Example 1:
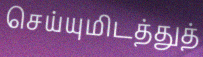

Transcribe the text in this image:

செய்யுமிடத்துத்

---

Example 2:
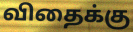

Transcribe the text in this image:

விதைக்கு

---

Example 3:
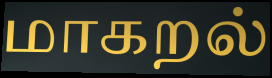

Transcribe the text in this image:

மாகறல்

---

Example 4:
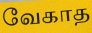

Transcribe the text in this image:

வேகாத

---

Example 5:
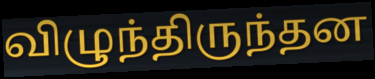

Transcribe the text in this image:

விழுந்திருந்தன